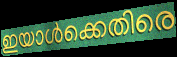
ഇയാൾക്കെതിരെ